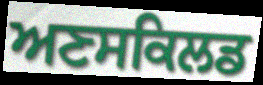
ਅਣਸਕਿਲਡ